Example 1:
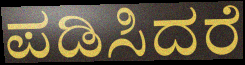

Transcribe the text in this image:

ಪಡಿಸಿದರೆ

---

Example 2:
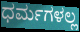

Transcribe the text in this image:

ಧರ್ಮಗಳಲ್ಲ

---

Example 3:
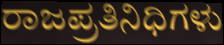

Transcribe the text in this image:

ರಾಜಪ್ರತಿನಿಧಿಗಳು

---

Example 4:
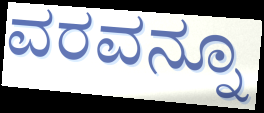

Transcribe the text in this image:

ವರವನ್ನೂ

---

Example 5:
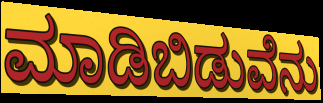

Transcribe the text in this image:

ಮಾಡಿಬಿಡುವೆನು